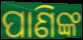
ପାଣିଙ୍କ